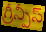
గ్రీన్పీస్